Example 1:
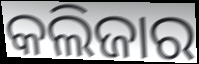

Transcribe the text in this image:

କଲିଜାର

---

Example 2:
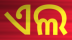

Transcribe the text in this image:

ଏଲ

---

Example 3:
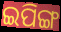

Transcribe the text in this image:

ଇପିଙ୍ଗ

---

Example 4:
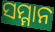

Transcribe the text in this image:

ସମ୍ମାନ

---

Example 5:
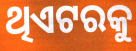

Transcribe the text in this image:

ଥିଏଟରକୁ